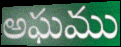
అఘము